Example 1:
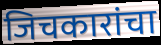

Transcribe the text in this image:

जिचकारांचा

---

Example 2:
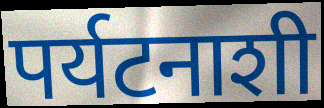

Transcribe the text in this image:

पर्यटनाशी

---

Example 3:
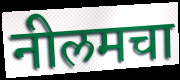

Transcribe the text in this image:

नीलमचा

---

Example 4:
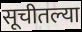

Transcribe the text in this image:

सूचीतल्या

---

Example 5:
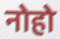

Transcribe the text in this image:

नोहो